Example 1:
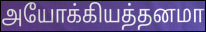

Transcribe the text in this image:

அயோக்கியத்தனமா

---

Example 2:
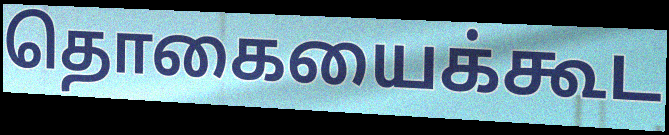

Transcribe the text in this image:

தொகையைக்கூட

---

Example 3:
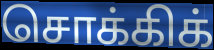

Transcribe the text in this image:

சொக்கிக்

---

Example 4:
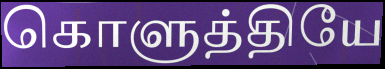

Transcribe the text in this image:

கொளுத்தியே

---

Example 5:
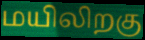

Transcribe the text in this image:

மயிலிறகு